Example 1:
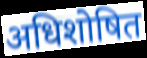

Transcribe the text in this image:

अधिशोषित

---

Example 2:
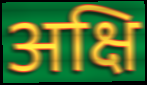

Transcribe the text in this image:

अक्षि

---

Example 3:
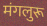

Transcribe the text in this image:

मंगलुरू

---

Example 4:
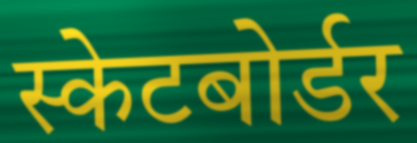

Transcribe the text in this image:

स्केटबोर्डर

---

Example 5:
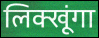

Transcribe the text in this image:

लिक्खूंगा